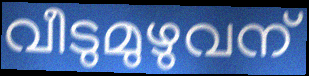
വീടുമുഴുവന്